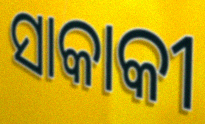
ସାକାକୀ